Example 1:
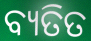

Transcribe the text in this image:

ବ୍ୟତିତ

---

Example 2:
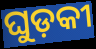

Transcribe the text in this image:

ଘୁଡ଼କୀ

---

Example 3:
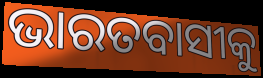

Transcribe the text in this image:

ଭାରତବାସୀକୁ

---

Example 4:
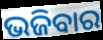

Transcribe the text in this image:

ଭଜିବାର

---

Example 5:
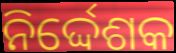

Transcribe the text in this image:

ନିର୍ଦ୍ଦେଶକ